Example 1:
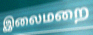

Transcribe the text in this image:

இலைமறை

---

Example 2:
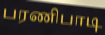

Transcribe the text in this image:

பரணிபாடி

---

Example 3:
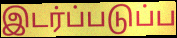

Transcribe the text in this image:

இடர்ப்படுப்ப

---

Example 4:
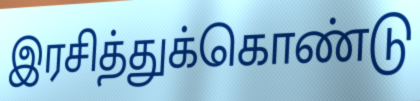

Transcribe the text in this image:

இரசித்துக்கொண்டு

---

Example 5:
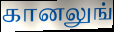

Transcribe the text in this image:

கானலுங்